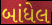
બાંધેલ